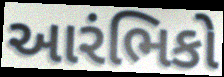
આરંભિકો